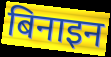
बिनाइन